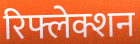
रिफ्लेक्शन